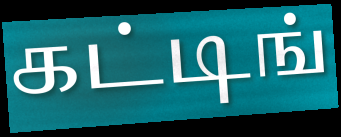
கட்டிங்